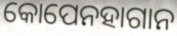
କୋପେନହାଗାନ